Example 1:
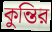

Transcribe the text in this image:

কুন্তির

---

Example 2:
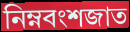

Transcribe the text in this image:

নিম্নবংশজাত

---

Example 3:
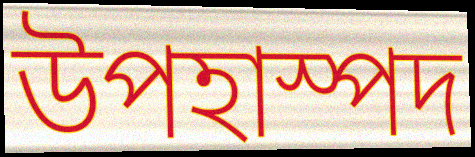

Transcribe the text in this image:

উপহাস্পদ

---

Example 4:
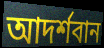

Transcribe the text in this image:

আদর্শবান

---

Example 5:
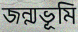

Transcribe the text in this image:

জন্মভূমি